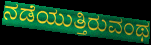
ನಡೆಯುತ್ತಿರುವಂಥ